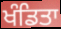
ਖੰਡਿਤਾ